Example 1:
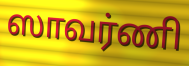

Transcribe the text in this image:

ஸாவர்ணி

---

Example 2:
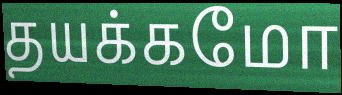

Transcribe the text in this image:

தயக்கமோ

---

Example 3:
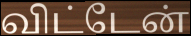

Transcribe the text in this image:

விட்டேன்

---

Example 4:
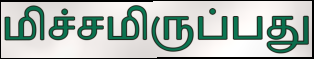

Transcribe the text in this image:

மிச்சமிருப்பது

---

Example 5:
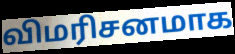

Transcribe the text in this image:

விமரிசனமாக